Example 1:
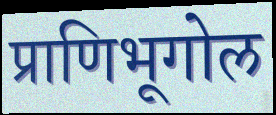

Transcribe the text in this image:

प्राणिभूगोल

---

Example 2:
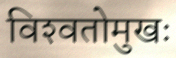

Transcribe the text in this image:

विश्वतोमुखः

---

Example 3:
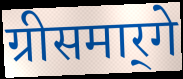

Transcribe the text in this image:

ग्रीसमार्गे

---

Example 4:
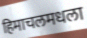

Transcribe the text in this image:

हिमाचलमधला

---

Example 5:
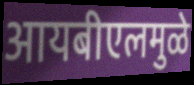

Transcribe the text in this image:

आयबीएलमुळे